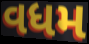
વધમ